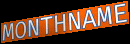
MONTHNAME